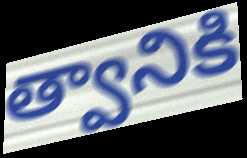
త్వానికి